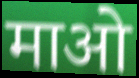
माओ